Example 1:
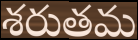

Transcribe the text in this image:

శరుతమ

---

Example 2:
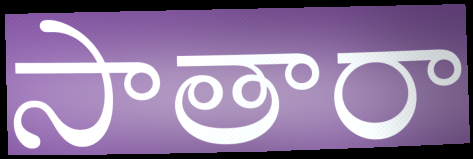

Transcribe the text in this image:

సాతారా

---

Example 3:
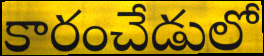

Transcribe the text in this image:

కారంచేడులో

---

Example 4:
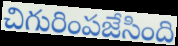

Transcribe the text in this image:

చిగురింపజేసింది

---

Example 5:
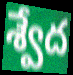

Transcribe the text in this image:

శ్వేద